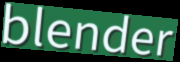
blender